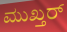
ಮುಖ್ತರ್